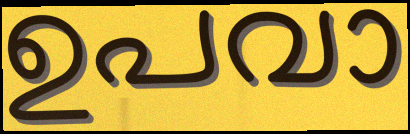
ഉപവാ